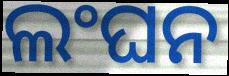
ଲଂଘନ